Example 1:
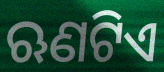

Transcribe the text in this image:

ଋଣଟିଏ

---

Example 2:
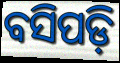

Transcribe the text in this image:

ବସିପଡ଼ି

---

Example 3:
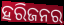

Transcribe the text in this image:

ହରିଜନର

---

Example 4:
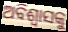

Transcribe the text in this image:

ଅବିଶ୍ୱାସକୁ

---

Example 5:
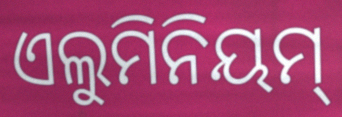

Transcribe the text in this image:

ଏଲୁମିନିୟମ୍